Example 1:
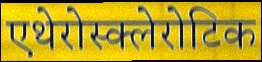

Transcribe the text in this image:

एथेरोस्क्लेरोटिक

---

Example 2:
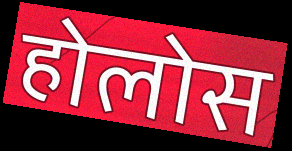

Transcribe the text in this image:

होलोस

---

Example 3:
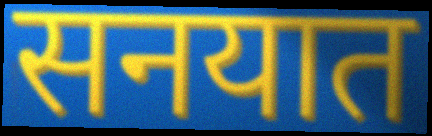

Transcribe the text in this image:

सनयात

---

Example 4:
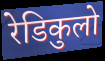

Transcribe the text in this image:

रेडिकुलो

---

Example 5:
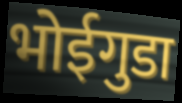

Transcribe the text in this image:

भोईगुडा